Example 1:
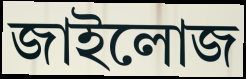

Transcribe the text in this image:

জাইলোজ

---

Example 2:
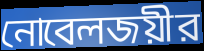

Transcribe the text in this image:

নোবেলজয়ীর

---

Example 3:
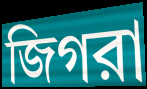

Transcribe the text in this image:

জিগরা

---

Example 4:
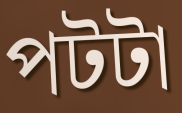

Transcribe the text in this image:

পটটা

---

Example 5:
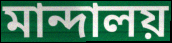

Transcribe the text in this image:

মান্দালয়